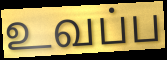
உவப்ப